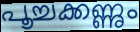
പൂച്ചക്കണ്ണും